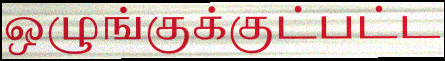
ஒழுங்குக்குட்பட்ட